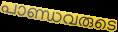
പാണ്ഡവരുടെ